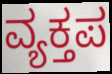
ವ್ಯಕ್ತಪ